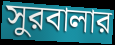
সুরবালার